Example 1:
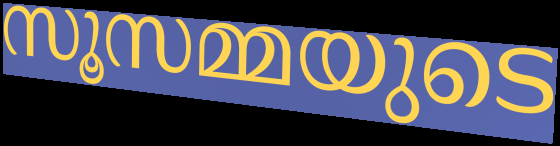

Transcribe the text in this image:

സൂസമ്മയുടെ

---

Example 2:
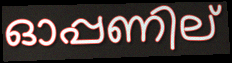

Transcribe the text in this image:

ഓപ്പണില്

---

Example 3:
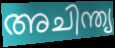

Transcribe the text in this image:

അചിന്ത്യ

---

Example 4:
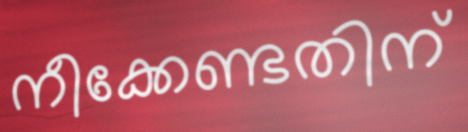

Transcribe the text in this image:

നീക്കേണ്ടതിന്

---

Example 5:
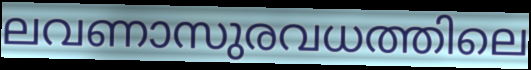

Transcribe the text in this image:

ലവണാസുരവധത്തിലെ